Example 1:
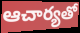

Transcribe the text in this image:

ఆచార్యతో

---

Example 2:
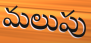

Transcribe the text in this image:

మలుపు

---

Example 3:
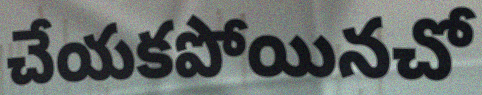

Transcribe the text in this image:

చేయకపోయినచో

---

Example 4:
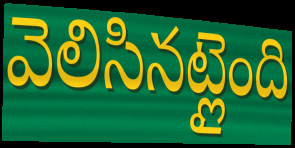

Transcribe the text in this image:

వెలిసినట్లైంది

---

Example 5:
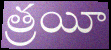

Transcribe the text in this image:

త్రయీ